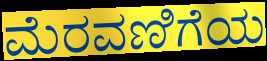
ಮೆರವಣಿಗೆಯ